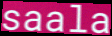
saala